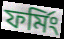
ফর্মিং